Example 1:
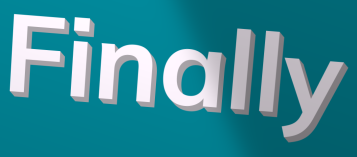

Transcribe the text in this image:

Finally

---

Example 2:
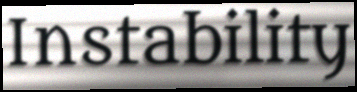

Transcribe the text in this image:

Instability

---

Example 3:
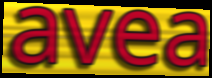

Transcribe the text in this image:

avea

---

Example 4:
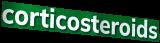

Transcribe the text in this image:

corticosteroids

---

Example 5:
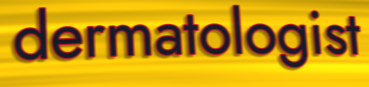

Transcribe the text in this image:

dermatologist